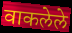
वाकलेले